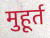
मुहूर्त